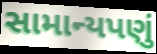
સામાન્યપણું